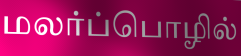
மலர்ப்பொழில்